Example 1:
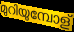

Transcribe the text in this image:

മുറിയുമ്പോള്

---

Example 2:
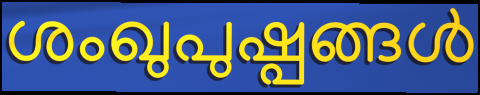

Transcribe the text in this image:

ശംഖുപുഷ്പങ്ങൾ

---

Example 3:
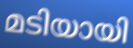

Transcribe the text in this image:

മടിയായി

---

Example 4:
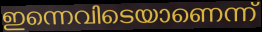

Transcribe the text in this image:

ഇന്നെവിടെയാണെന്ന്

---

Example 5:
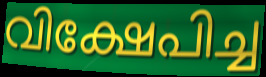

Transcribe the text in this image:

വിക്ഷേപിച്ച